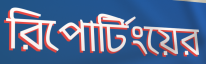
রিপোর্টিংয়ের